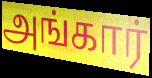
அங்கார்